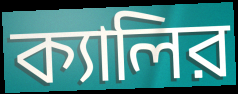
ক্যালির